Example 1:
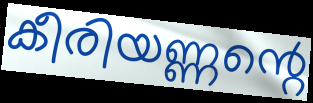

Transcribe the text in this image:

കീരിയണ്ണന്റെ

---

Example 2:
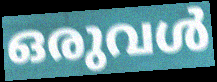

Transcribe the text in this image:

ഒരുവൾ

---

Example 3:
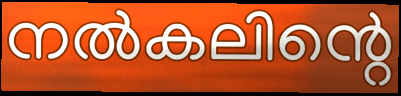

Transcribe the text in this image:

നൽകലിന്റെ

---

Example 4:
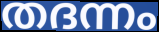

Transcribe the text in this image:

തദന്നം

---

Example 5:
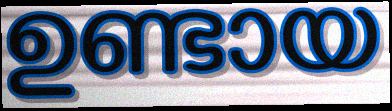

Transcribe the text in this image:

ഉണ്ടായ